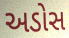
અડોસ